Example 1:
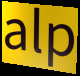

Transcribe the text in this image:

alp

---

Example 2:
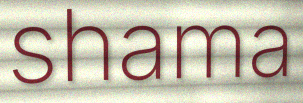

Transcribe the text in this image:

shama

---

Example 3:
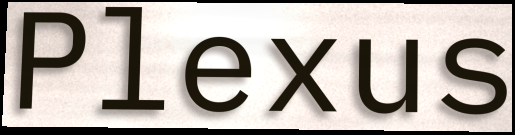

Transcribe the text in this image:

Plexus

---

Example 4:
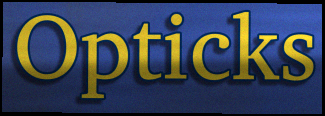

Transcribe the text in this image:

Opticks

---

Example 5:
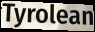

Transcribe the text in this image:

Tyrolean